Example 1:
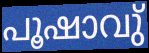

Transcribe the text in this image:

പൂഷാവു്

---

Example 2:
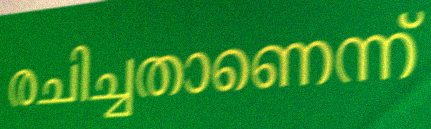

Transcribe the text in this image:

രചിച്ചതാണെന്ന്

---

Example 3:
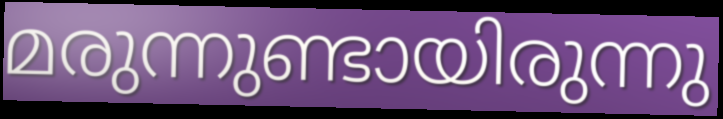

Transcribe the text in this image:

മരുന്നുണ്ടായിരുന്നു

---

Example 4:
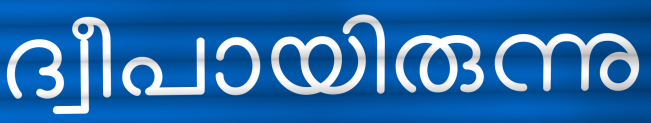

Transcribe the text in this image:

ദ്വീപായിരുന്നു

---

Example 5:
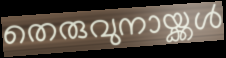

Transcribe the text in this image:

തെരുവുനായ്ക്കൾ